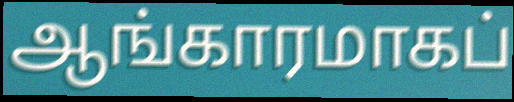
ஆங்காரமாகப்